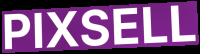
PIXSELL